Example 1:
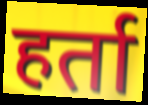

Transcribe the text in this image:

हर्ता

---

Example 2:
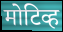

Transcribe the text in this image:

मोटिव्ह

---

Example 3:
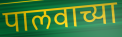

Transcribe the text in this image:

पालवाच्या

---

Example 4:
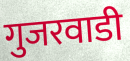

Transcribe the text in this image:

गुजरवाडी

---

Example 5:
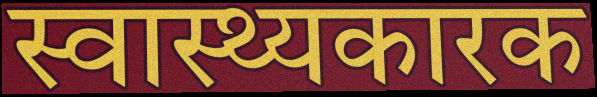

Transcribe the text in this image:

स्वास्थ्यकारक